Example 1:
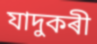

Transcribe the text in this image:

যাদুকৰী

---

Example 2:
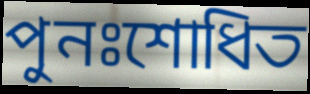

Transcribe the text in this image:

পুনঃশোধিত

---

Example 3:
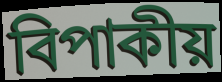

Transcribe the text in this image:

বিপাকীয়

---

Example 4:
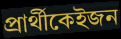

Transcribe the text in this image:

প্ৰাৰ্থীকেইজন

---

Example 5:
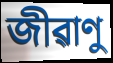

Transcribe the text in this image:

জীৱাণু